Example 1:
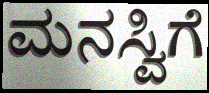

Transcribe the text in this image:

ಮನಸ್ವಿಗೆ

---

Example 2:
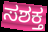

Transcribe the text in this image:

ಸಶಕ್ತ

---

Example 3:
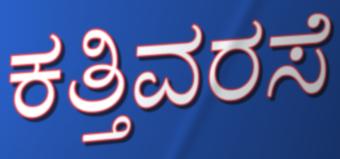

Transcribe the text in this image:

ಕತ್ತಿವರಸೆ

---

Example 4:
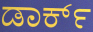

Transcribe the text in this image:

ಡಾರ್ಕ್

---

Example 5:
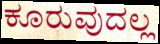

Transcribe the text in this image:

ಕೂರುವುದಲ್ಲ